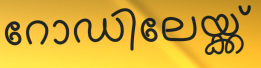
റോഡിലേയ്ക്ക്